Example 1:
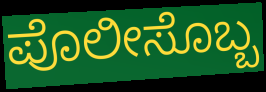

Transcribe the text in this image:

ಪೊಲೀಸೊಬ್ಬ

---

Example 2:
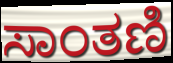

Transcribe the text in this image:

ಸಾಂತಣಿ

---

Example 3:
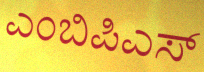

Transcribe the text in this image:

ಎಂಬಿಪಿಎಸ್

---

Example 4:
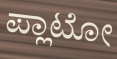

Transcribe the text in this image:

ಪ್ಲಾಟೋ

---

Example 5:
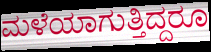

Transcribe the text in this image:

ಮಳೆಯಾಗುತ್ತಿದ್ದರೂ